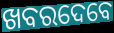
ଖବରଦେବେ